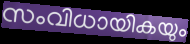
സംവിധായികയും